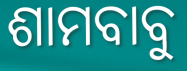
ଶାମବାବୁ